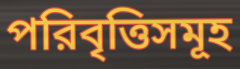
পরিবৃত্তিসমূহ